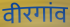
वीरगांव